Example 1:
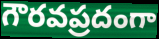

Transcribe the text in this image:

గౌరవప్రదంగా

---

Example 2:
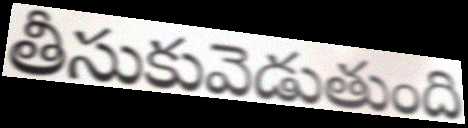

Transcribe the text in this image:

తీసుకువెడుతుంది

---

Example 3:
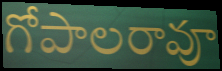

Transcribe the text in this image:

గోపాలరావూ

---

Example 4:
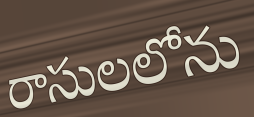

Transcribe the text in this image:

రాసులలోను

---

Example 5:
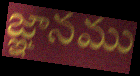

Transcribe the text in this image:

జ్ఞానము